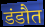
डंडौत